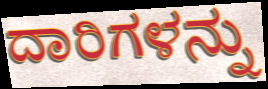
ದಾರಿಗಳನ್ನು